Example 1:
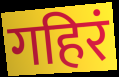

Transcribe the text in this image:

गहिरं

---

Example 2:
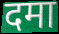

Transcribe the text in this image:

दमा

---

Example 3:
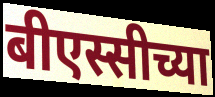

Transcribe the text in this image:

बीएस्सीच्या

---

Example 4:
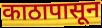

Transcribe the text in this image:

काठापासून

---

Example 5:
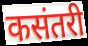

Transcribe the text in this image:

कसंतरी